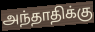
அந்தாதிக்கு